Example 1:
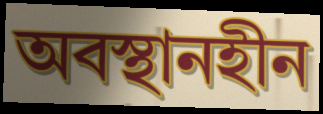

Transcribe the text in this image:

অবস্থানহীন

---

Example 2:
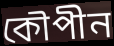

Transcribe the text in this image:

কৌপীন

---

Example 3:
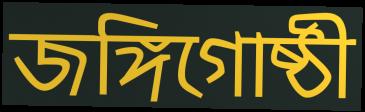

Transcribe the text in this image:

জঙ্গিগোষ্ঠী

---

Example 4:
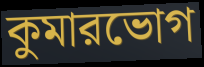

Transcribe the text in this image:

কুমারভোগ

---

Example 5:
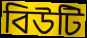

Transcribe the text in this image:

বিউটি